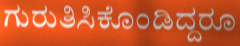
ಗುರುತಿಸಿಕೊಂಡಿದ್ದರೂ